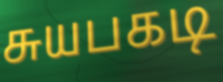
சுயபகடி